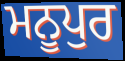
ਮਨੂਪੁਰ